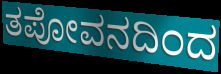
ತಪೋವನದಿಂದ